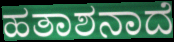
ಹತಾಶನಾದೆ